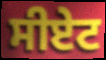
ਸੀਏਟ